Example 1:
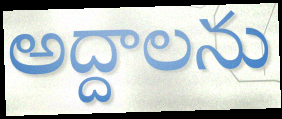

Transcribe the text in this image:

అద్దాలను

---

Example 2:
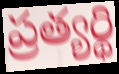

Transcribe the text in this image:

ప్రత్యర్థి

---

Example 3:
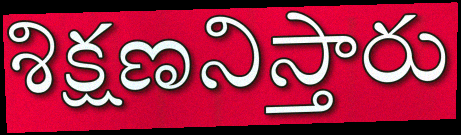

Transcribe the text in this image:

శిక్షణనిస్తారు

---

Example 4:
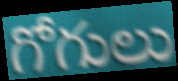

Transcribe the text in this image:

గోగులు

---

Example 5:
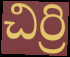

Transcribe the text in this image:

చిర్రి